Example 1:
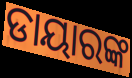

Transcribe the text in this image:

ଡାୟାରଙ୍କ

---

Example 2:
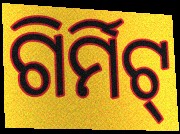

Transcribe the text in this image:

ଗିର୍ମିଟ୍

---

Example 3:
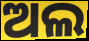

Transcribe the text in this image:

ଅଲ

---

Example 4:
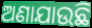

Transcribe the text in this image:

ଅଣାଯାଉଛି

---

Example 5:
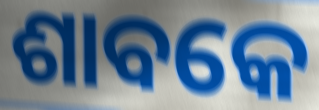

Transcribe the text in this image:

ଶାବକେ